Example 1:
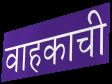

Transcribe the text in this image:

वाहकाची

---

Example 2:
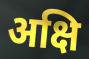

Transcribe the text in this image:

अक्षि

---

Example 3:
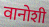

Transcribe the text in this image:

वानोशी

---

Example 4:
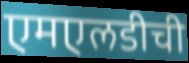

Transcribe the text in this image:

एमएलडीची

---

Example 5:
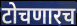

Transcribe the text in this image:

टोचणारच